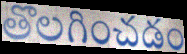
తొలగించడం